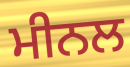
ਮੀਨਲ